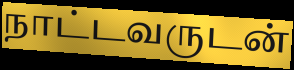
நாட்டவருடன்